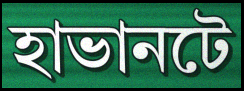
হাভানটে